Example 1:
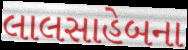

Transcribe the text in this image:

લાલસાહેબના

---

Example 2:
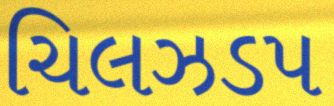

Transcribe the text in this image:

ચિલઝડપ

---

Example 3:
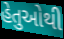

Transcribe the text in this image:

હેતુઓથી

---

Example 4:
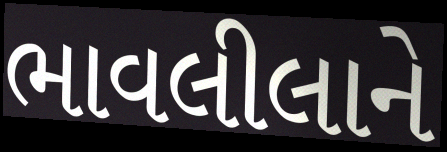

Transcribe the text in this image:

ભાવલીલાને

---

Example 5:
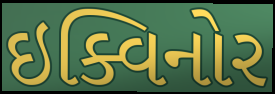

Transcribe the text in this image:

ઇક્વિનોર